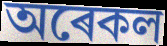
অৰেকল